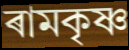
ৰামকৃষ্ণ